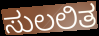
ಸುಲಲಿತ